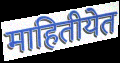
माहितीयेत